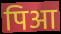
पिआ